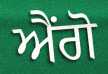
ਐਂਗੋ